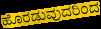
ಹೊರಡುವುದರಿಂದ